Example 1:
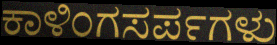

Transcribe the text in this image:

ಕಾಳಿಂಗಸರ್ಪಗಳು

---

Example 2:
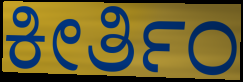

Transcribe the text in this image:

ಕೀರ್ತಿಂ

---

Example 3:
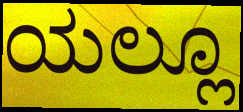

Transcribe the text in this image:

ಯಲ್ಲೂ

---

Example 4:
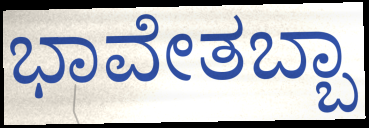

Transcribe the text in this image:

ಭಾವೇತಬ್ಬಾ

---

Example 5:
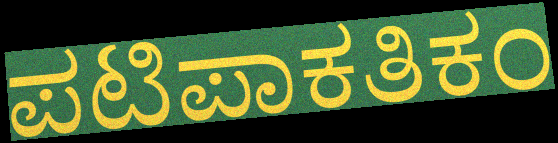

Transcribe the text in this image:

ಪಟಿಪಾಕತಿಕಂ